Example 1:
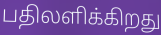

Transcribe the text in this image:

பதிலளிக்கிறது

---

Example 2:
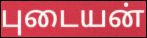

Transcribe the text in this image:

புடையன்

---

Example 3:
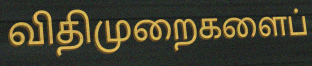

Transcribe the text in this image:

விதிமுறைகளைப்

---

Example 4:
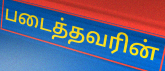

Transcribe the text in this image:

படைத்தவரின்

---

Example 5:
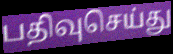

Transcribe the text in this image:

பதிவுசெய்து